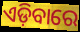
ଏଡ଼ିବାରେ